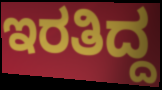
ಇರತಿದ್ದ